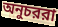
অনুচররা